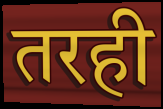
तरही